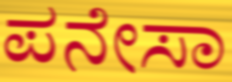
ಪನೇಸಾ